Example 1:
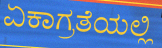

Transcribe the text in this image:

ಏಕಾಗ್ರತೆಯಲ್ಲಿ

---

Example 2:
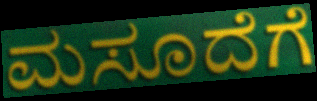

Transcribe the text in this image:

ಮಸೂದೆಗೆ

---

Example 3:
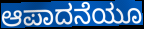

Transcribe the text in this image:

ಆಪಾದನೆಯೂ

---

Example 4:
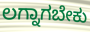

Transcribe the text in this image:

ಲಗ್ನಾಗಬೇಕು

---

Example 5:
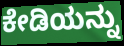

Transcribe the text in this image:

ಕೇಡಿಯನ್ನು